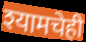
श्यामचेही